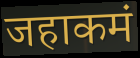
जहाकमं